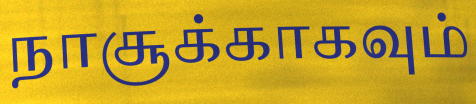
நாசூக்காகவும்